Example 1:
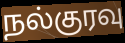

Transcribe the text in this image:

நல்குரவு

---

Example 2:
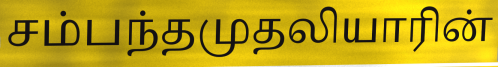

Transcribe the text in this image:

சம்பந்தமுதலியாரின்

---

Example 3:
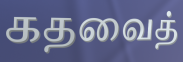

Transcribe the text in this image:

கதவைத்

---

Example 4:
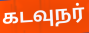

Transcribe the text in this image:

கடவுநர்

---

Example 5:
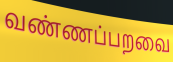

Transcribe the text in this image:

வண்ணப்பறவை